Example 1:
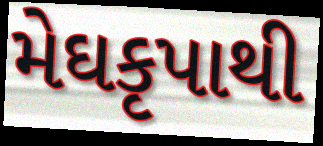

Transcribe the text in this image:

મેઘકૃપાથી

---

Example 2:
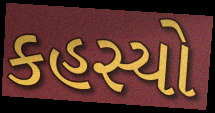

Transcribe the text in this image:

કહસ્યો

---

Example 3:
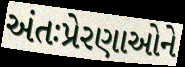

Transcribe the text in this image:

અંતઃપ્રેરણાઓને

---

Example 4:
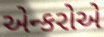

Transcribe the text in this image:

એન્કરોએ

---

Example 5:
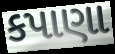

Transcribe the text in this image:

કપાણા